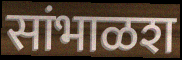
सांभाळश